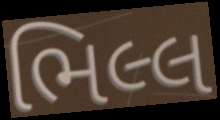
ભિલ્લ